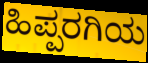
ಹಿಪ್ಪರಗಿಯ